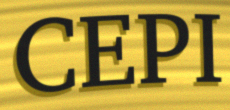
CEPI